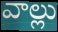
వాల్లు